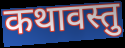
कथावस्तु